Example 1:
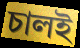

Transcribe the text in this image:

চালই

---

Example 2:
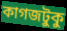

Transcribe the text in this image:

কাগজটুকু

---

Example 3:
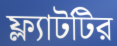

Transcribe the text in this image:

ফ্ল্যাটটির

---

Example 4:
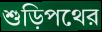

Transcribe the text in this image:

শুড়িপথের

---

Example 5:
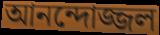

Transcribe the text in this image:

আনন্দোজ্জল